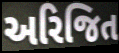
અરિજિત